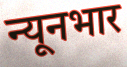
न्यूनभार